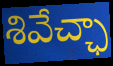
శివేచ్ఛా